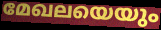
മേഖലയെയും